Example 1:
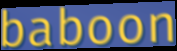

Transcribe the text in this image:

baboon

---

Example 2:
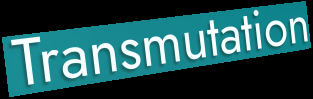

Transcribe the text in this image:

Transmutation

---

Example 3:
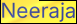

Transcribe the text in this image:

Neeraja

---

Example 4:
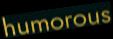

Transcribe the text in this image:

humorous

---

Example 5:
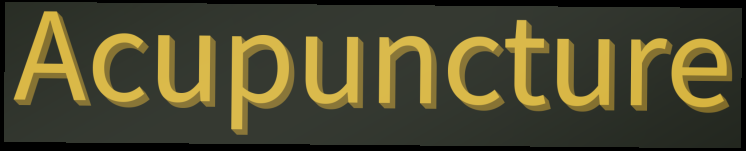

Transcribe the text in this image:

Acupuncture